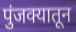
पुंजक्यातून